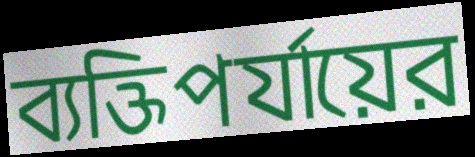
ব্যক্তিপর্যায়ের